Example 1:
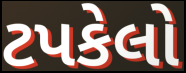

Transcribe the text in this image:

ટપકેલો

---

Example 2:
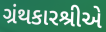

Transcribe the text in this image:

ગ્રંથકારશ્રીએ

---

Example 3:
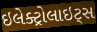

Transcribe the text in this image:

ઇલેક્ટ્રોલાઇટ્સ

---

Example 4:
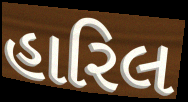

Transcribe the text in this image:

હારિલ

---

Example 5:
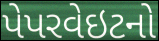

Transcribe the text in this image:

પેપરવેઇટનો